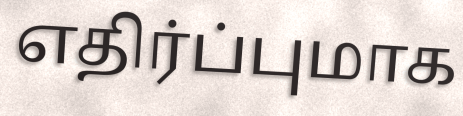
எதிர்ப்புமாக